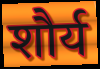
शौर्य